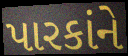
પારકાંને